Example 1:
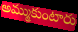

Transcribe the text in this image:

అమ్ముకుంటారు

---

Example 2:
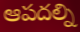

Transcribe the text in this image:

ఆపదల్ని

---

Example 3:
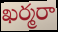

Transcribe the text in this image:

ఖర్మరా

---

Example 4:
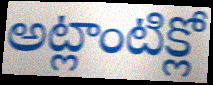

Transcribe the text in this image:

అట్లాంటిక్లో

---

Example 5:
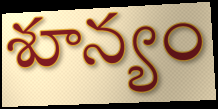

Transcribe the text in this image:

శూన్యం